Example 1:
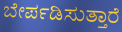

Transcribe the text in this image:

ಬೇರ್ಪಡಿಸುತ್ತಾರೆ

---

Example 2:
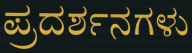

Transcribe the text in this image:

ಪ್ರದರ್ಶನಗಳು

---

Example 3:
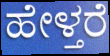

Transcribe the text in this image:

ಹೇಳ್ತರೆ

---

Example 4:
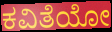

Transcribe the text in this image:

ಕವಿತೆಯೋ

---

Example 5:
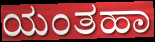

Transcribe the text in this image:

ಯಂತಹಾ